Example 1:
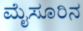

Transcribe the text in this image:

ಮೈಸೂರಿನ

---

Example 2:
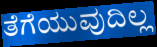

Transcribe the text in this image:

ತೆಗೆಯುವುದಿಲ್ಲ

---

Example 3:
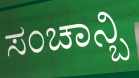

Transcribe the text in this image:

ಸಂಚಾನ್ಬಿ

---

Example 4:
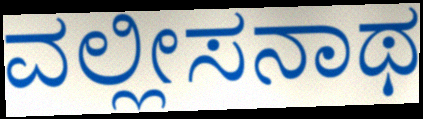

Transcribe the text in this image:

ವಲ್ಲೀಸನಾಥ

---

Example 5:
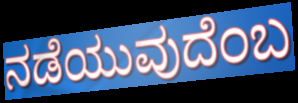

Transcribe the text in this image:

ನಡೆಯುವುದೆಂಬ